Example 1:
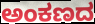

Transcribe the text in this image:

ಅಂಕಣದ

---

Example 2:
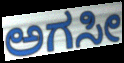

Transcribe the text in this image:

ಅಗಸೀ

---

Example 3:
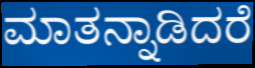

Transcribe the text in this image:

ಮಾತನ್ನಾಡಿದರೆ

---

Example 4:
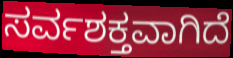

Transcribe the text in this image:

ಸರ್ವಶಕ್ತವಾಗಿದೆ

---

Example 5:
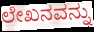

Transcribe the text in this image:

ಲೇಖನವನ್ನು